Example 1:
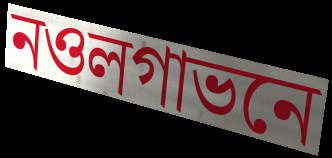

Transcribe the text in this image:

নওলগাভনে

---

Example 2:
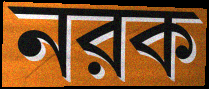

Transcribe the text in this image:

নরক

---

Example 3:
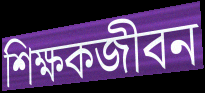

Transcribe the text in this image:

শিক্ষকজীবন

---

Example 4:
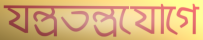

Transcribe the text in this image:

যন্ত্রতন্ত্রযোগে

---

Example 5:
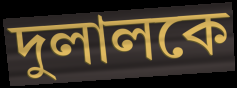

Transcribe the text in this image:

দুলালকে